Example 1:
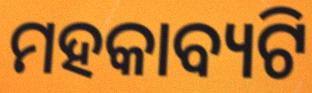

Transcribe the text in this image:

ମହକାବ୍ୟଟି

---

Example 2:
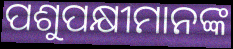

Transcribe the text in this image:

ପଶୁପକ୍ଷୀମାନଙ୍କ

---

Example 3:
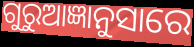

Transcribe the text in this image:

ଗୁରୁଆଜ୍ଞାନୁସାରେ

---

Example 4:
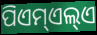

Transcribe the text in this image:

ପିଏମ୍ଏଲ୍ଏ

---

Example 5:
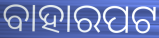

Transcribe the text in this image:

ବାହାରପଟ